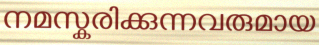
നമസ്കരിക്കുന്നവരുമായ